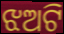
ଝଅଟି